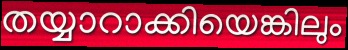
തയ്യാറാക്കിയെങ്കിലും